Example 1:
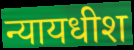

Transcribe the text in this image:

न्यायधीश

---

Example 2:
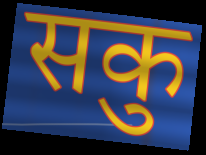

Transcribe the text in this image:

सकु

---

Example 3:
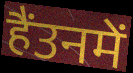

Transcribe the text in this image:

हैंउनमें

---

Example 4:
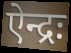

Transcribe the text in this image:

ऐन्द्रः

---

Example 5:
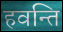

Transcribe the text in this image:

हवन्ति